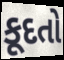
કૂદતો